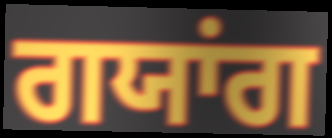
ਗਯਾਂਗ